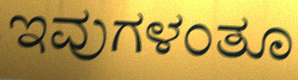
ಇವುಗಳಂತೂ